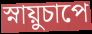
স্নায়ুচাপে